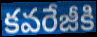
కవరేజీకి